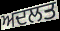
ਅਦਲਤ